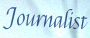
Journalist